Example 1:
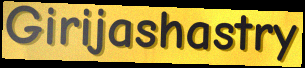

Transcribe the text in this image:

Girijashastry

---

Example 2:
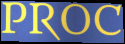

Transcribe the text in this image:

PROC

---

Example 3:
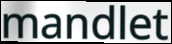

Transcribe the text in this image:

mandlet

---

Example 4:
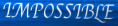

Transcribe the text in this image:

IMPOSSIBLE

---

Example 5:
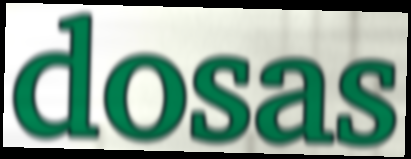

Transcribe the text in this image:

dosas